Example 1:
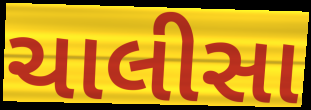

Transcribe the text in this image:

ચાલીસા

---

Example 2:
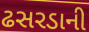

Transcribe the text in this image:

ઢસરડાની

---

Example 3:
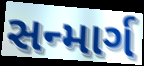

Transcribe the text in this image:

સન્માર્ગ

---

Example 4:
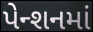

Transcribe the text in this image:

પેન્શનમાં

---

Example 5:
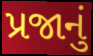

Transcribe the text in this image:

પ્રજાનું